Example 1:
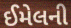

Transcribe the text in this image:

ઈમેલની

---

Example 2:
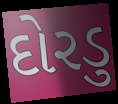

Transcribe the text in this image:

દોરડુ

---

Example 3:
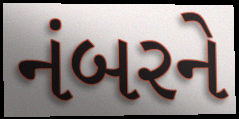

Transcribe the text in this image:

નંબરને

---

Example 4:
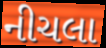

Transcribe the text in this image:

નીચલા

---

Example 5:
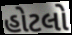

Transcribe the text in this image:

હોટલો